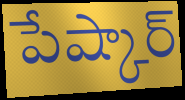
పేష్కార్